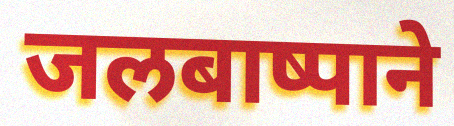
जलबाष्पाने